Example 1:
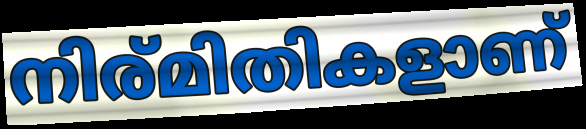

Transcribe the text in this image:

നിര്മിതികളാണ്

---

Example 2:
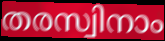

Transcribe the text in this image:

തരസ്വിനാം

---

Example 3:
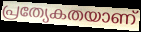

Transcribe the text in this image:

പ്രത്യേകതയാണ്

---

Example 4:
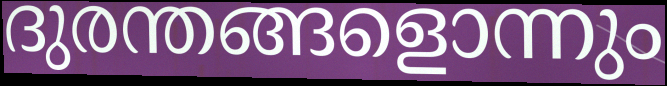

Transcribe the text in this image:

ദുരന്തങ്ങളൊന്നും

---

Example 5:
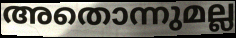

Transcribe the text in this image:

അതൊന്നുമല്ല